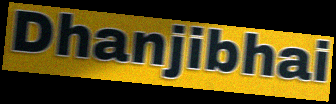
Dhanjibhai